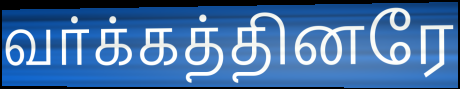
வர்க்கத்தினரே